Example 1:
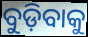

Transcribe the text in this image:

ବୁଡ଼ିବାକୁ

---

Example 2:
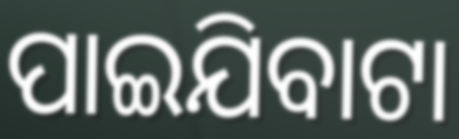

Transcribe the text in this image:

ପାଇଯିବାଟା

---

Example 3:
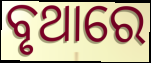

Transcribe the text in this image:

ବୃଥାରେ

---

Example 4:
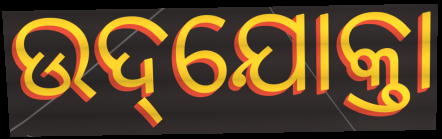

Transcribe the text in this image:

ଉଦ୍‌ଯୋକ୍ତା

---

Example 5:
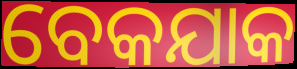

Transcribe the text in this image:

ବେକଯାକ